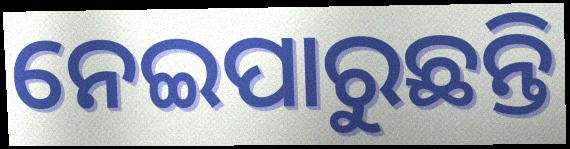
ନେଇପାରୁଛନ୍ତି